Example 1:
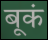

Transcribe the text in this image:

बूकं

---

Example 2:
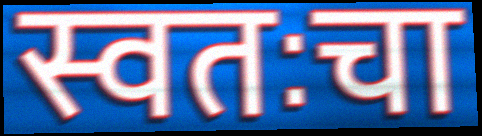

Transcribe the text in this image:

स्वतःचा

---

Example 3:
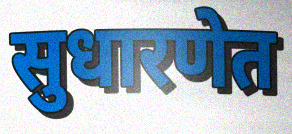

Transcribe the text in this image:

सुधारणेत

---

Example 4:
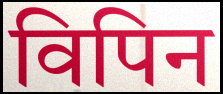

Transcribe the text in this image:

विपिन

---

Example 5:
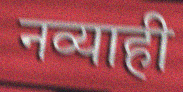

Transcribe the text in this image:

नव्याही